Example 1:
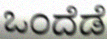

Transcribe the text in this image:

ಒಂದೆಡೆ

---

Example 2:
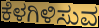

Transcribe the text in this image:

ಕೆಳಗಿಳಿಸುವ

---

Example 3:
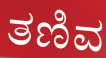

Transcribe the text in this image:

ತಣಿವ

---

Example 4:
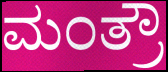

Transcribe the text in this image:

ಮಂತ್ರೌ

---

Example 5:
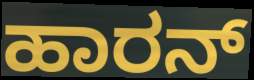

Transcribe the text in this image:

ಹಾರನ್